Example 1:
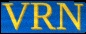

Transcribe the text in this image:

VRN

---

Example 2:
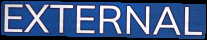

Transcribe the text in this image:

EXTERNAL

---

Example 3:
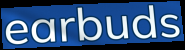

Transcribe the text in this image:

earbuds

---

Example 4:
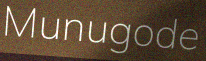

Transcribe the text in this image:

Munugode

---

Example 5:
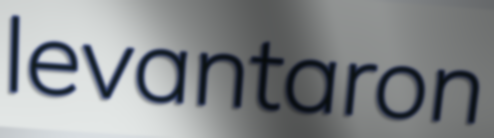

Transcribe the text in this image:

levantaron